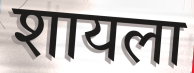
शायला